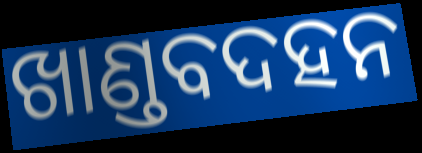
ଖାଣ୍ଡବଦହନ